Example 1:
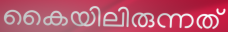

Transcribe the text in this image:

കൈയിലിരുന്നത്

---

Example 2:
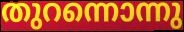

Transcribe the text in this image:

തുറന്നൊന്നു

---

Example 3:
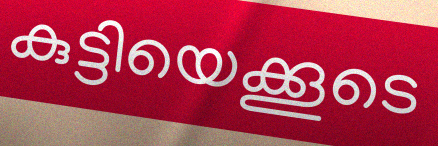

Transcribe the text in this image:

കുട്ടിയെക്കൂടെ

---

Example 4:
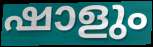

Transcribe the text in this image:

ഷാളും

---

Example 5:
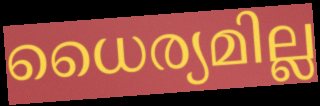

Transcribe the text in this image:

ധൈര്യമില്ല